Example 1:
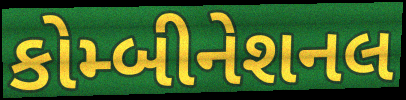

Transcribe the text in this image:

કોમ્બીનેશનલ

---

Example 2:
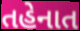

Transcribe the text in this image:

તહેનાત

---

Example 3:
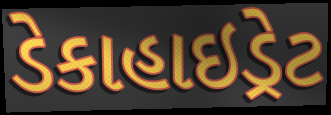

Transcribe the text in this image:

ડેકાહાઇડ્રેટ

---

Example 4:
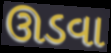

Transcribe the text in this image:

ઊડવા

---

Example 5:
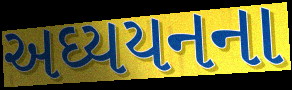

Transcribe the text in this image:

અઘ્યયનના